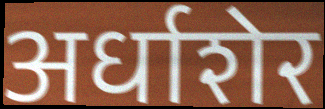
अर्धाशेर